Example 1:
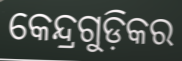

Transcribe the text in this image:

କେନ୍ଦ୍ରଗୁଡ଼ିକର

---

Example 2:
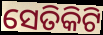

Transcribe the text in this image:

ସେତିକିଟି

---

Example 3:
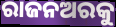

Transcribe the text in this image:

ରାଜନଅରକୁ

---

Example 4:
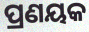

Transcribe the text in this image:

ପ୍ରଣୟକ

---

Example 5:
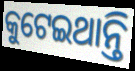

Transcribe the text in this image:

କୁଟେଇଥାନ୍ତି